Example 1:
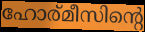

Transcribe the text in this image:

ഹോര്മീസിന്റെ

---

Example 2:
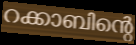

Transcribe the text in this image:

റക്കാബിന്റെ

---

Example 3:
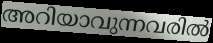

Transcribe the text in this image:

അറിയാവുന്നവരിൽ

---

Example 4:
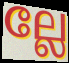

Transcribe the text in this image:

ല്ലേ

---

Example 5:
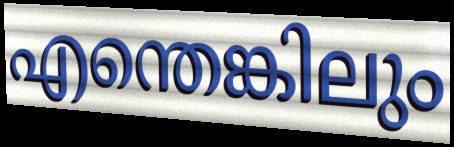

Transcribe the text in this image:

എന്തെങ്കിലും